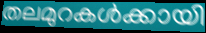
തലമുറകൾക്കായി